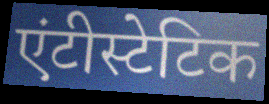
एंटीस्टेटिक